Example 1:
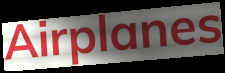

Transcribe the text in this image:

Airplanes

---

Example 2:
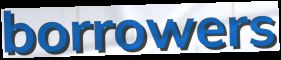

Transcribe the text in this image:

borrowers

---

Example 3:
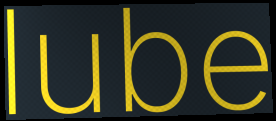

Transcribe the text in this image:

lube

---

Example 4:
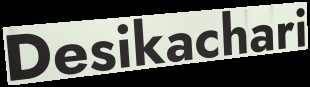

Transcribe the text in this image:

Desikachari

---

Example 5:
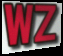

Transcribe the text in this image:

WZ